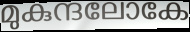
മുകുന്ദലോകേ